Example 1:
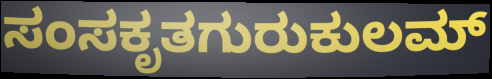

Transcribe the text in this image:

ಸಂಸಕೃತಗುರುಕುಲಮ್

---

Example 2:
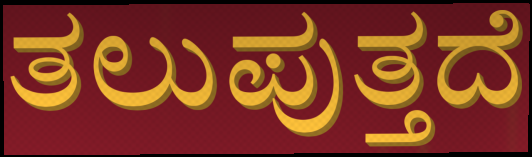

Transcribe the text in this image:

ತಲುಪುತ್ತದೆ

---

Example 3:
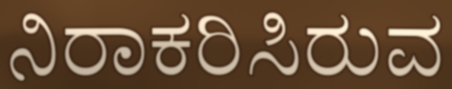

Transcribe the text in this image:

ನಿರಾಕರಿಸಿರುವ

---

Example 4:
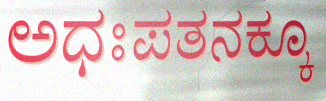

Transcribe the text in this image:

ಅಧಃಪತನಕ್ಕೂ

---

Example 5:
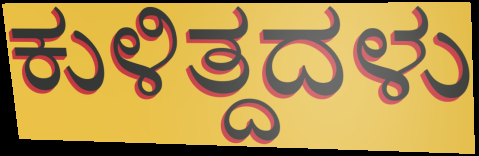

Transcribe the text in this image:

ಕುಳಿತ್ದದಳು